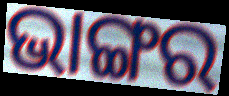
ଭାଙ୍ଗର